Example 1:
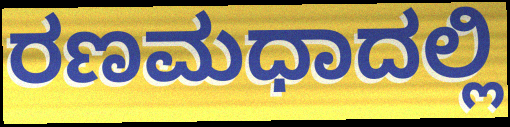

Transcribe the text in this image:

ರಣಮಧಾದಲ್ಲಿ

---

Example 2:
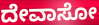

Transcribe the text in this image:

ದೇವಾಸೋ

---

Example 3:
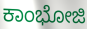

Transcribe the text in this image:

ಕಾಂಭೋಜಿ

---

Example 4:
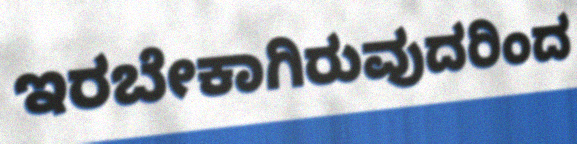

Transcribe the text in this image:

ಇರಬೇಕಾಗಿರುವುದರಿಂದ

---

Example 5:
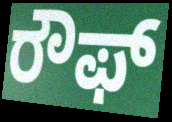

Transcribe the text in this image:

ರೌಫ್